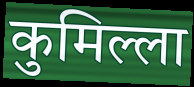
कुमिल्ला